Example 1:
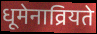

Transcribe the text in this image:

धूमेनाव्रियते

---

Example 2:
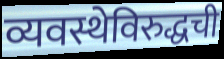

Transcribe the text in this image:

व्यवस्थेविरुद्धची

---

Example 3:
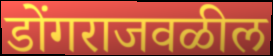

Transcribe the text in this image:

डोंगराजवळील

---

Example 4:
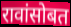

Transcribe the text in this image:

रावांसोबत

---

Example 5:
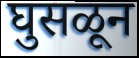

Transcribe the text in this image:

घुसळून